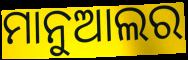
ମାନୁଆଲର